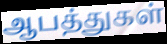
ஆபத்துகள்